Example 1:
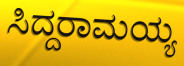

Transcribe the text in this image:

ಸಿದ್ದರಾಮಯ್ಯ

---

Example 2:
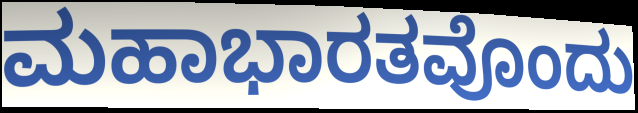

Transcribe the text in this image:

ಮಹಾಭಾರತವೊಂದು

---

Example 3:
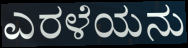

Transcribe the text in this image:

ಎರಳೆಯನು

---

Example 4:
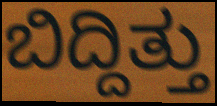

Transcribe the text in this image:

ಬಿದ್ದಿತ್ತು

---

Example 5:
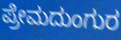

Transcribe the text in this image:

ಪ್ರೇಮದುಂಗುರ